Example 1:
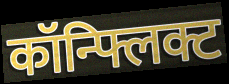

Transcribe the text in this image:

कॉन्फ्लिक्ट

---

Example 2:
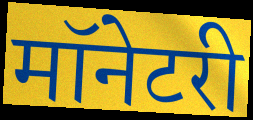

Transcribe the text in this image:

मॉनेटरी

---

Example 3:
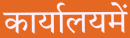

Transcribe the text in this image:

कार्यालयमें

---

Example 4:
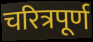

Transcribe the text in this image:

चरित्रपूर्ण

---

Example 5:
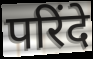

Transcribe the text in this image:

परिंदे